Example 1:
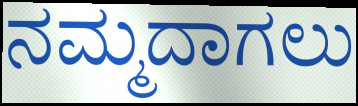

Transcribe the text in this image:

ನಮ್ಮದಾಗಲು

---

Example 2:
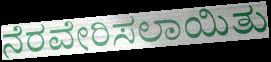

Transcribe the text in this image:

ನೆರವೇರಿಸಲಾಯಿತು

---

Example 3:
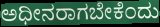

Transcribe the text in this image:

ಅಧೀನರಾಗಬೇಕೆಂದು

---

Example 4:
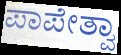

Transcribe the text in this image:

ಪಾಪೇತ್ವಾ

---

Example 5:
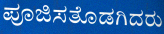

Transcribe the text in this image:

ಪೂಜಿಸತೊಡಗಿದರು